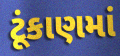
ટૂંકાણમાં